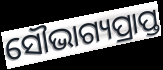
ସୌଭାଗ୍ୟପ୍ରାପ୍ତ